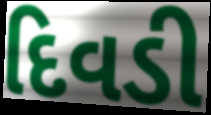
દિવડી